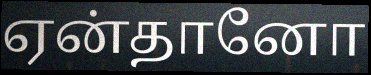
ஏன்தானோ